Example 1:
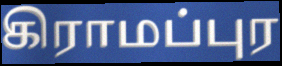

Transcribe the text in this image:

கிராமப்புர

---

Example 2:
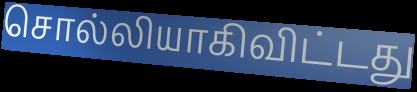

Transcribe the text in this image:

சொல்லியாகிவிட்டது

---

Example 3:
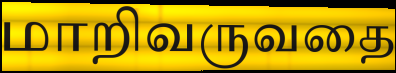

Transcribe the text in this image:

மாறிவருவதை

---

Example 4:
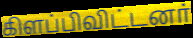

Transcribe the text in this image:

கிளப்பிவிட்டனர்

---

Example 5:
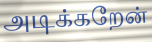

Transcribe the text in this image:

அடிக்கறேன்